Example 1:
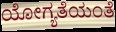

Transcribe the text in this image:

ಯೋಗ್ಯತೆಯಂತೆ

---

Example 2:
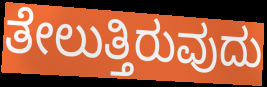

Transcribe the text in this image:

ತೇಲುತ್ತಿರುವುದು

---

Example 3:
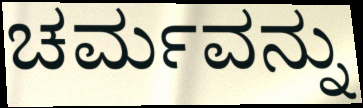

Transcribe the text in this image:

ಚರ್ಮವನ್ನು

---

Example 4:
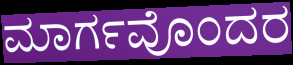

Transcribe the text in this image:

ಮಾರ್ಗವೊಂದರ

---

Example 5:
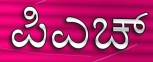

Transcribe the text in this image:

ಪಿಎಚ್